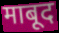
माबूद